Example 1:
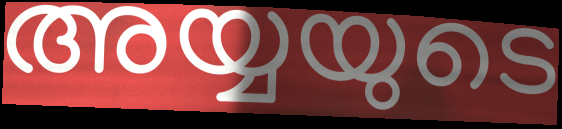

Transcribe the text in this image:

അയ്യയുടെ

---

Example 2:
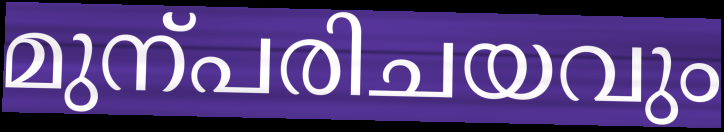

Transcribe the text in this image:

മുന്പരിചയവും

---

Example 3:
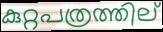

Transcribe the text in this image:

കുറ്റപത്രത്തില്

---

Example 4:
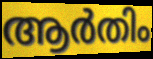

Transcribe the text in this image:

ആർതിം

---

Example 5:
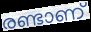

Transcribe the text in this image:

രണ്ടാണ്